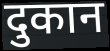
दुकान